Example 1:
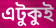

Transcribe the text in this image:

এটুকুই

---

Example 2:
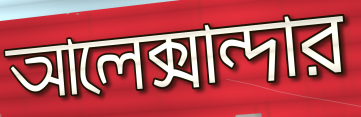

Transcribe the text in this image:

আলেক্সান্দার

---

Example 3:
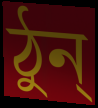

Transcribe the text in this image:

ঠুন্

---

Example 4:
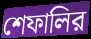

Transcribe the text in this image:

শেফালির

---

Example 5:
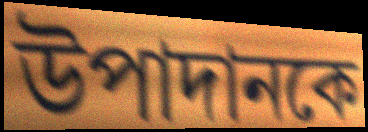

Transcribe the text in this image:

উপাদানকে